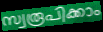
സ്വരൂപിക്കാം